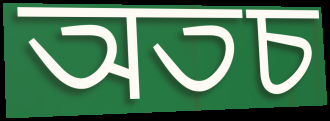
অতচ